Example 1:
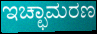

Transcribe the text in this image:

ಇಚ್ಛಾಮರಣ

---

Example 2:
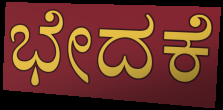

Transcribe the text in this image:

ಭೇದಕೆ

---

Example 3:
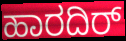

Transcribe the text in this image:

ಹಾರದಿರ್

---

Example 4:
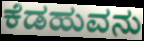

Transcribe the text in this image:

ಕೆಡಹುವನು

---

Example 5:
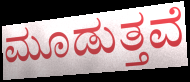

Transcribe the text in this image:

ಮೂಡುತ್ತವೆ